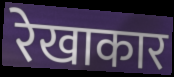
रेखाकार